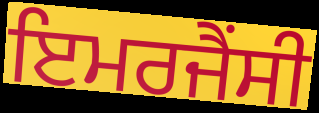
ਇਮਰਜੈਂਸੀ